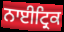
ਨਾਈਟ੍ਰਿਕ